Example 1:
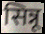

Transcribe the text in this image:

सिन्नू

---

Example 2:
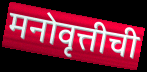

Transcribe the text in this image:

मनोवृत्तीची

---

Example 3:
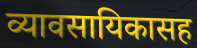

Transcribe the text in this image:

व्यावसायिकासह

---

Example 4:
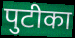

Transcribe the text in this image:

पुटीका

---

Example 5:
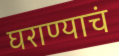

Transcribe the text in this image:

घराण्याचं